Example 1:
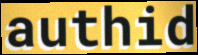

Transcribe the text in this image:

authid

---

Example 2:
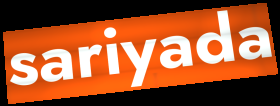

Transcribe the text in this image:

sariyada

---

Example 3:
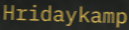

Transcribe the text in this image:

Hridaykamp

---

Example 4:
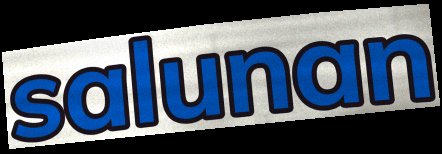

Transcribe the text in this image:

salunan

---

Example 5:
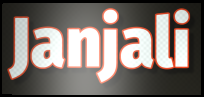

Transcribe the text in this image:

Janjali